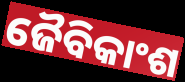
ଜୈବିକାଂଶ